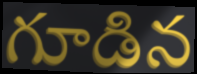
గూడిన